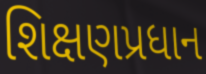
શિક્ષણપ્રધાન